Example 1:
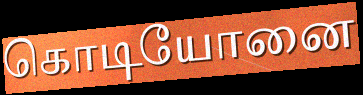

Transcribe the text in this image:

கொடியோனை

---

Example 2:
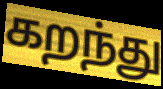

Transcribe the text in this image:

கறந்து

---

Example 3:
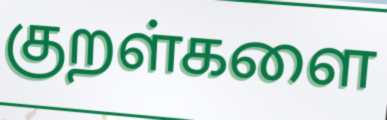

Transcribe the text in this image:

குறள்களை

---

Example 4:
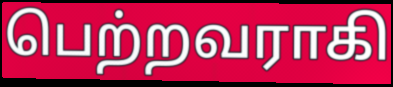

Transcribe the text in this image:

பெற்றவராகி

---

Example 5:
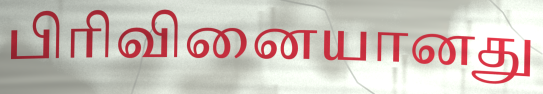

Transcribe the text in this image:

பிரிவினையானது